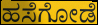
ಹಸೆಗೋಡೆ